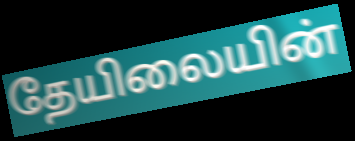
தேயிலையின்